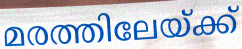
മരത്തിലേയ്ക്ക്